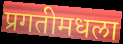
प्रगतीमधला